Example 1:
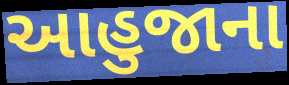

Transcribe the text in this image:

આહુજાના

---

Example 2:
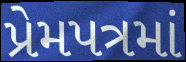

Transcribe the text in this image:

પ્રેમપત્રમાં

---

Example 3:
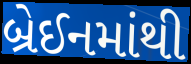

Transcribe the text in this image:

બ્રેઈનમાંથી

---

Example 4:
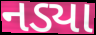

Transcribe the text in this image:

નડ્યા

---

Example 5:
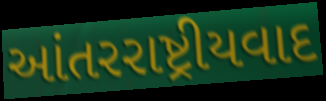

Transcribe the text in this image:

આંતરરાષ્ટ્રીયવાદ